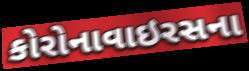
કોરોનાવાઇરસના